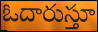
ఓదారుస్తూ